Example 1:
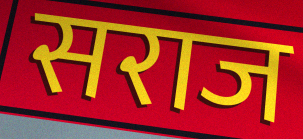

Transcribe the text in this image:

सराज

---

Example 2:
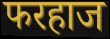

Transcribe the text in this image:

फरहाज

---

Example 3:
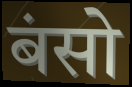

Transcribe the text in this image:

बंसो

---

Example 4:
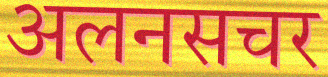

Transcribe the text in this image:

अलनसचर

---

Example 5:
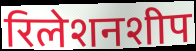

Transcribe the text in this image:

रिलेशनशीप